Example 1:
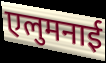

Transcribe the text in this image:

एलुमनाई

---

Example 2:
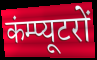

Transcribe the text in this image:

कंम्प्यूटरों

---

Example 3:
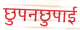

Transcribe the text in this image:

छुपनछुपाई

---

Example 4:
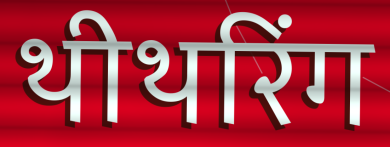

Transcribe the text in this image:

थीथरिंग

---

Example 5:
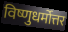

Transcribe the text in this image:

विष्णुधर्मोत्तर